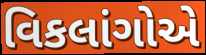
વિકલાંગોએ